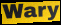
Wary